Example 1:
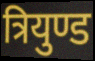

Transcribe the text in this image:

त्रियुण्ड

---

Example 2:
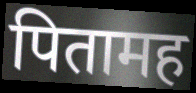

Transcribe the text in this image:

पितामह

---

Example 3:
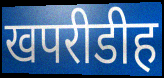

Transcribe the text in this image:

खपरीडीह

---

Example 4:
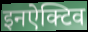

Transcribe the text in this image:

इनऐक्टिव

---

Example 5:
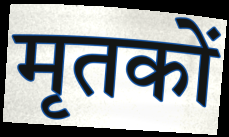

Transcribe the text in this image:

मृतकों